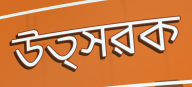
উত্সৱক